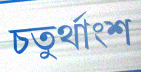
চতুৰ্থাংশ